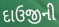
દાઉજીની